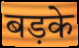
बड़के